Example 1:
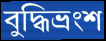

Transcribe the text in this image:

বুদ্ধিভ্রংশ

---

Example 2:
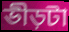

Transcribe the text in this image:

ভীড়টা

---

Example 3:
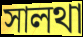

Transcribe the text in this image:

সালথা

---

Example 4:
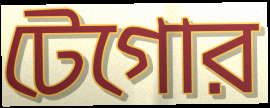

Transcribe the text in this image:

টেগোর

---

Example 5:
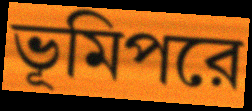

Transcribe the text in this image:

ভূমিপরে